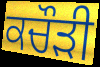
ਕਚੌੜੀ